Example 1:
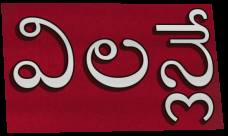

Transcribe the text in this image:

విలన్లే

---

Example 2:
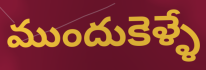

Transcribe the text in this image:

ముందుకెళ్ళే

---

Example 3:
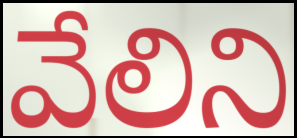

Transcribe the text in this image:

వేలిని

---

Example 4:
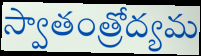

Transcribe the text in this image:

స్వాతంత్రోద్యమ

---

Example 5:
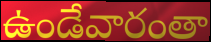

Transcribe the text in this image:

ఉండేవారంతా